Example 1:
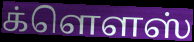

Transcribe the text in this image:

க்ளௌஸ்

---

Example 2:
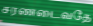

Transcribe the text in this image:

சரணடைவதே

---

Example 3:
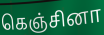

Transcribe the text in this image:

கெஞ்சினா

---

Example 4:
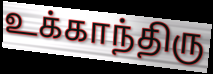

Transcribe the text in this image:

உக்காந்திரு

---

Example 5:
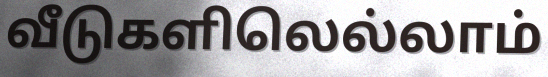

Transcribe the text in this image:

வீடுகளிலெல்லாம்